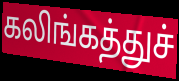
கலிங்கத்துச்